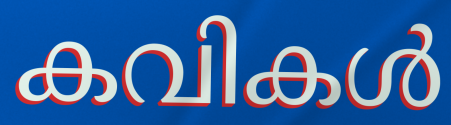
കവികൾ